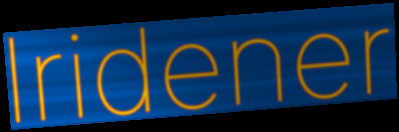
lridener